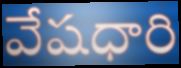
వేషధారి